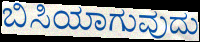
ಬಿಸಿಯಾಗುವುದು